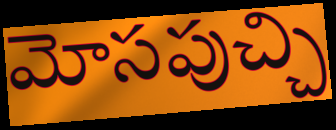
మోసపుచ్చి